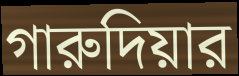
গারুদিয়ার